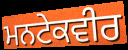
ਮਨਟੇਕਵੀਰ